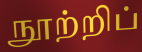
நூற்றிப்